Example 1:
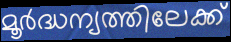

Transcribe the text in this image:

മൂർദ്ധന്യത്തിലേക്ക്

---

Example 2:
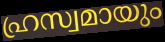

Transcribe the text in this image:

ഹ്രസ്വമായും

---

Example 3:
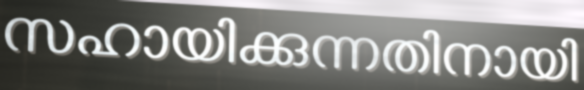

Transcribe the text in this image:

സഹായിക്കുന്നതിനായി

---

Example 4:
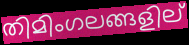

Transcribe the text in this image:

തിമിംഗലങ്ങളില്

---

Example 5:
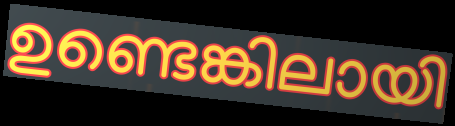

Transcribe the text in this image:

ഉണ്ടെങ്കിലായി